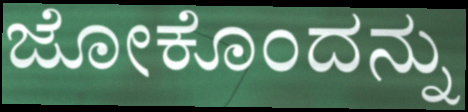
ಜೋಕೊಂದನ್ನು